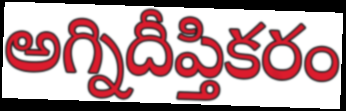
అగ్నిదీప్తికరం